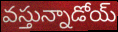
వస్తున్నాడోయ్